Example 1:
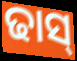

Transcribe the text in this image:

ଢାସ୍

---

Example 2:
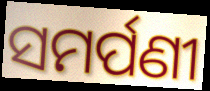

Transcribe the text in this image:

ସମର୍ପଣୀ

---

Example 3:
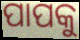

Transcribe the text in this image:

ପାପକୁ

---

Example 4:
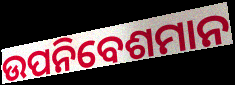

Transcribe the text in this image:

ଉପନିବେଶମାନ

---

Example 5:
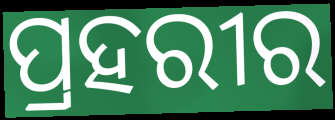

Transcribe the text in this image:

ପ୍ରହରୀର